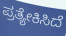
ಪ್ರತ್ಯೇಕಿಸಿದೆ